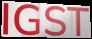
IGST